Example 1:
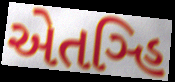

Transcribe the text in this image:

એતઞ્હિ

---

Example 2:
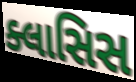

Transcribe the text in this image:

ક્લાસિસ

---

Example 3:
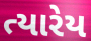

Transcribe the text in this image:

ત્યારેય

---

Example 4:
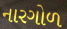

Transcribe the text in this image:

નારગોળ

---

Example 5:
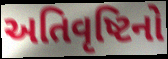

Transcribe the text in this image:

અતિવૃષ્ટિનો